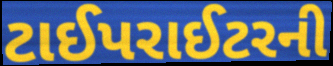
ટાઈપરાઈટરની